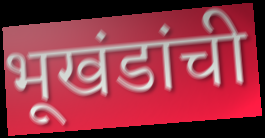
भूखंडांची